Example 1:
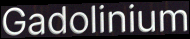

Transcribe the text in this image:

Gadolinium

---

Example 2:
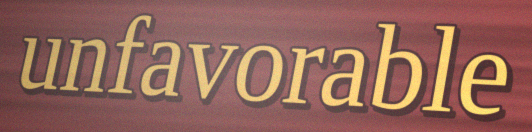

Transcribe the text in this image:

unfavorable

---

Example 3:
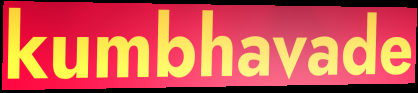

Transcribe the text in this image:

kumbhavade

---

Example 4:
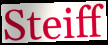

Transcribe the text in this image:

Steiff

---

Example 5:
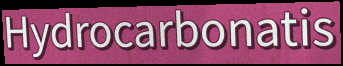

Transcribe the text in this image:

Hydrocarbonatis